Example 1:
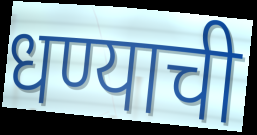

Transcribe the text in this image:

धण्याची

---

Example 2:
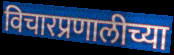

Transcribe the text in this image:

विचारप्रणालीच्या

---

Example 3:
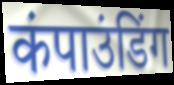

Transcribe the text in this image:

कंपाउंडिंग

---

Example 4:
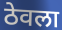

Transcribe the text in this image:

ठेवला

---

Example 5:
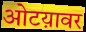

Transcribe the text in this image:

ओटय़ावर